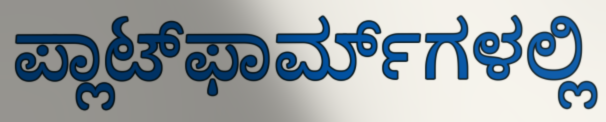
ಪ್ಲಾಟ್‌ಫಾರ್ಮ್‌ಗಳಲ್ಲಿ